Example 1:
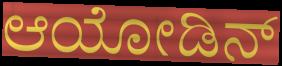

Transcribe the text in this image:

ಆಯೋಡಿನ್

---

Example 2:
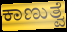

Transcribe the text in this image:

ಕಾಣುತ್ವೆ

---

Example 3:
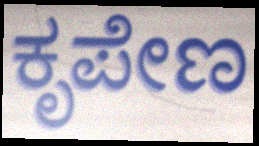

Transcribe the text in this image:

ಕೃಪೇಣ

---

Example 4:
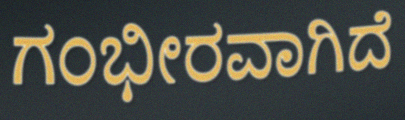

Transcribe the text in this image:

ಗಂಭೀರವಾಗಿದೆ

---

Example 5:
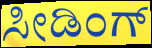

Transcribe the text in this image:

ಸೀಡಿಂಗ್